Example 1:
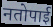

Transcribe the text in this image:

नतोपाई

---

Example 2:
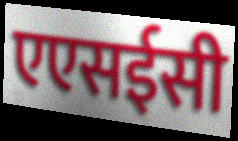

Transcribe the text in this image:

एएसईसी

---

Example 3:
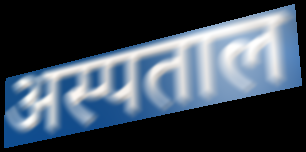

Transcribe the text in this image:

अस्पताल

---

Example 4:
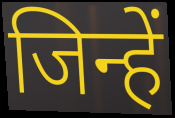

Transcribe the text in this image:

जिन्हें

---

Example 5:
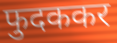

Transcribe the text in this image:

फुदककर